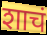
शाचं